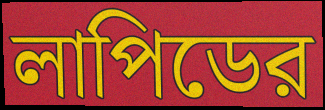
লাপিডের